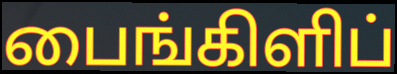
பைங்கிளிப்